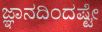
ಜ್ಞಾನದಿಂದಷ್ಟೇ